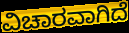
ವಿಚಾರವಾಗಿದೆ